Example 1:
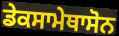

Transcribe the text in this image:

ਡੇਕਸਾਮੇਥਾਸੋਨ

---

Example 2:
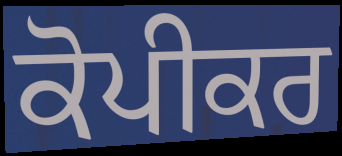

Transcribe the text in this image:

ਕੋਪੀਕਰ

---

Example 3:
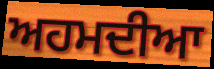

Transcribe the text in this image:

ਅਹਮਦੀਆ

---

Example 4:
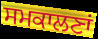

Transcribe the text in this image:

ਸਮਕਾਲਣਾਂ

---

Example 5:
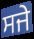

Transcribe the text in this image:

ਸਜੇ